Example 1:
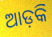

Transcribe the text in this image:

ଆଡ଼କି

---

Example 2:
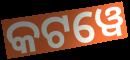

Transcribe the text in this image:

କଟୱେ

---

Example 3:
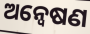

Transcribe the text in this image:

ଅନ୍ବେଷଣ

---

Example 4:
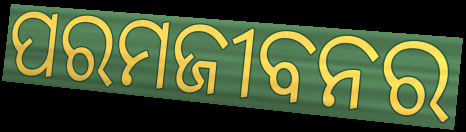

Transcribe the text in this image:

ପରମଜୀବନର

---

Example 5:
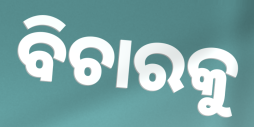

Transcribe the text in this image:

ବିଚାରକୁ